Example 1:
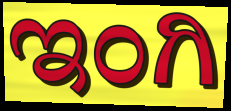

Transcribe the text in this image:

ಇಂಗಿ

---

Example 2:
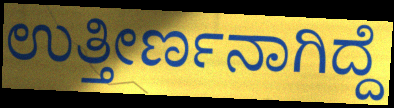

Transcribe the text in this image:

ಉತ್ತೀರ್ಣನಾಗಿದ್ದೆ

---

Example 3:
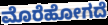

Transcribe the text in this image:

ಮೊರೆಹೋಗದೆ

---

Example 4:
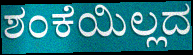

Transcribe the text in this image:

ಶಂಕೆಯಿಲ್ಲದ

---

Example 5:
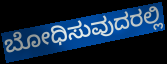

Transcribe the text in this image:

ಬೋಧಿಸುವುದರಲ್ಲಿ